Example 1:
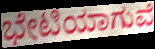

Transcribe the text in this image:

ಭೇಟಿಯಾಗುವೆ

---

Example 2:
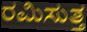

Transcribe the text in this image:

ರಮಿಸುತ್ತ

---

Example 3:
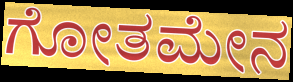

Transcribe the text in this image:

ಗೋತಮೇನ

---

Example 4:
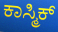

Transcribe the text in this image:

ಕಾಸ್ಮಿಕ್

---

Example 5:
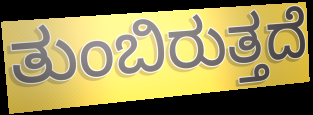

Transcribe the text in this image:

ತುಂಬಿರುತ್ತದೆ